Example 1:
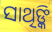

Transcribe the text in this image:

ସାଥିଙ୍କି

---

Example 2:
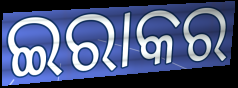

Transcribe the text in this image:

ଇରାକର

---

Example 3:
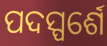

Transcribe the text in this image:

ପଦସ୍ପର୍ଶେ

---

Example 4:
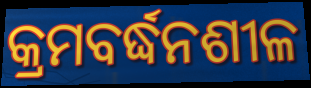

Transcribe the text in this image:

କ୍ରମବର୍ଦ୍ଧନଶୀଳ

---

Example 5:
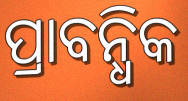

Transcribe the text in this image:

ପ୍ରାବନ୍ଧିକ